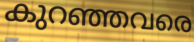
കുറഞ്ഞവരെ